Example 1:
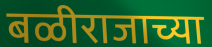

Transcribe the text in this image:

बळीराजाच्या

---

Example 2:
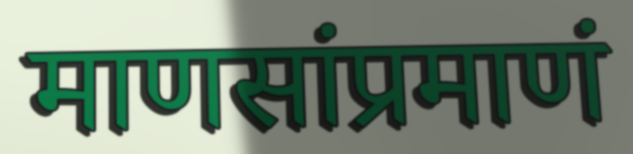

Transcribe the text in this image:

माणसांप्रमाणं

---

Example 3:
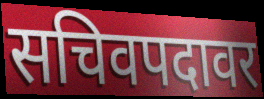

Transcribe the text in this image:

सचिवपदावर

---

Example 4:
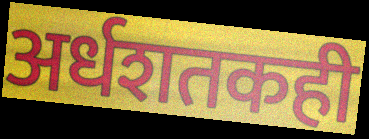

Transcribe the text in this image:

अर्धशतकही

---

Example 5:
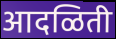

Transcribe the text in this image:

आदळिती